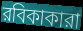
রবিকাকারা